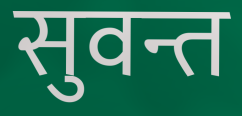
सुवन्त